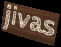
jivas